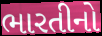
ભારતીનો